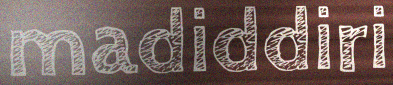
madiddiri